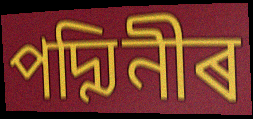
পদ্মিনীৰ